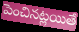
పెంచినట్లయితే